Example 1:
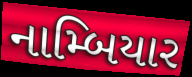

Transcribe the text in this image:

નામ્બિયાર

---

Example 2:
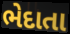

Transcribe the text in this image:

ભેદાતા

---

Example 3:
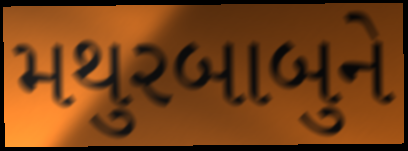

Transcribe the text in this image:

મથુરબાબુને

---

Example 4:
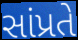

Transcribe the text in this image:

સાંપ્રતે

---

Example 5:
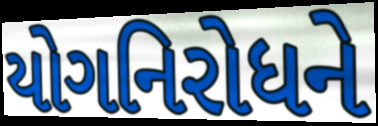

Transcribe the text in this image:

યોગનિરોધને